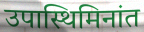
उपास्थिमिनांत